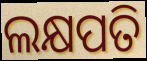
ଲକ୍ଷପତି